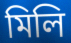
মিলি